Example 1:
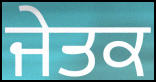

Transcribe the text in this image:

ਜੇਤਕ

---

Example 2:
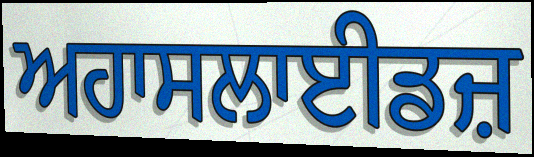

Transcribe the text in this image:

ਅਹਾਸਲਾਈਡਜ਼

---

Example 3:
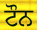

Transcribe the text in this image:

ਟੌਨ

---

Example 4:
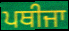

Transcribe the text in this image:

ਪਥੀਜਾ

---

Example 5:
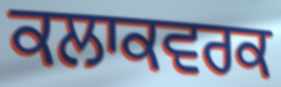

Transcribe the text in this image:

ਕਲਾਕਵਰਕ